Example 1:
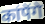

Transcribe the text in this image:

कांपेंगे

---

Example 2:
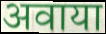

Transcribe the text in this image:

अवाया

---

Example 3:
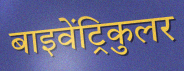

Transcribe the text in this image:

बाइवेंट्रिकुलर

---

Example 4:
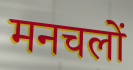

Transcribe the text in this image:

मनचलों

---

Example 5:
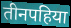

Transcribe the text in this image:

तीनपहिया